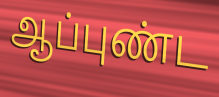
ஆப்புண்ட